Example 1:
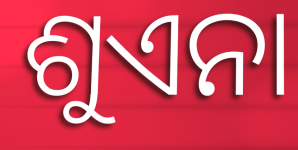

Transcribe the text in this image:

ଶୁଏନା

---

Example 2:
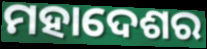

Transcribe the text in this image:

ମହାଦେଶର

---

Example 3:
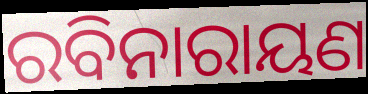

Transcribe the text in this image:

ରବିନାରାୟଣ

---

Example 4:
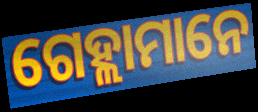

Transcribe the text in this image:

ଗେହ୍ଲାମାନେ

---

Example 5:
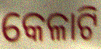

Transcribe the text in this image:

କେଳାଟି